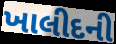
ખાલીદની